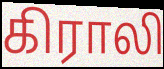
கிராலி